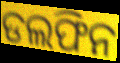
ଡଲଫିନ